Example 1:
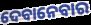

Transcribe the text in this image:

ଦେବାନେବାର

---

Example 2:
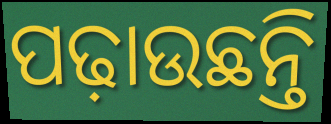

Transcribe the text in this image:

ପଢ଼ାଉଛନ୍ତି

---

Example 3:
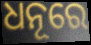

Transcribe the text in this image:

ଧନୂରେ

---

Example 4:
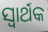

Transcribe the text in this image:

ସ୍ବାର୍ଥକ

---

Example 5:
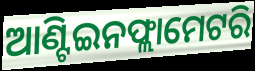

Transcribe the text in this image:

ଆଣ୍ଟିଇନଫ୍ଲାମେଟରି